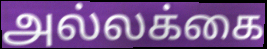
அல்லக்கை